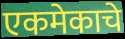
एकमेकाचे